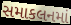
સમાકલનમાં